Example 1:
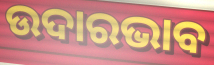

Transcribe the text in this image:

ଉଦାରଭାବ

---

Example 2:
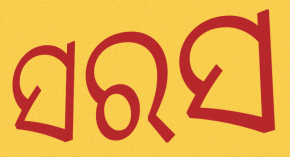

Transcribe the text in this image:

ସରସ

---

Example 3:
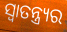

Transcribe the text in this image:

ସ୍ୱାତନ୍ତ୍ର୍ୟର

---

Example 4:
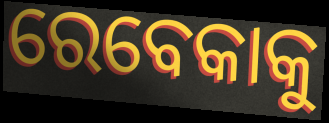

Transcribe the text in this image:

ରେବେକାକୁ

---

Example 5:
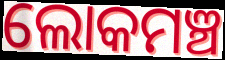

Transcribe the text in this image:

ଲୋକମଞ୍ଚ